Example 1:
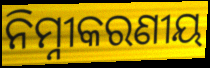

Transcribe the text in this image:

ନିମ୍ନୀକରଣୀୟ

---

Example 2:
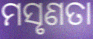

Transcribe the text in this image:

ମସୃଣତା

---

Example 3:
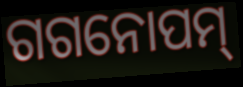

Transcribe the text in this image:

ଗଗନୋପମ୍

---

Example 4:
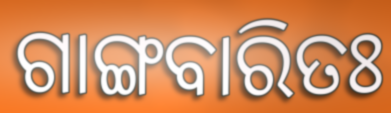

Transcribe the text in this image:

ଗାଙ୍ଗବାରିତଃ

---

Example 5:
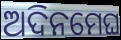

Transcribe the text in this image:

ଅଦିନମେଘ